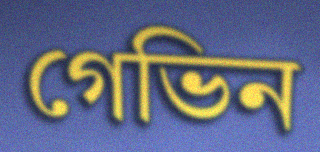
গেভিন